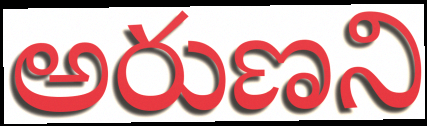
అరుణని